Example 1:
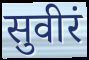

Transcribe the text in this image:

सुवीरं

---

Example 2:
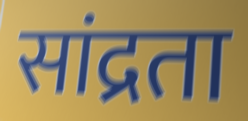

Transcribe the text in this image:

सांद्रता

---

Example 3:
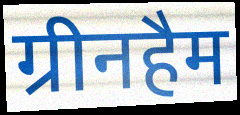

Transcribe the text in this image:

ग्रीनहैम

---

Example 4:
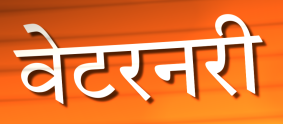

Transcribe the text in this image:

वेटरनरी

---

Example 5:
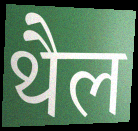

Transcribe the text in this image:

थैल